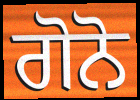
ਗੋਨੋ